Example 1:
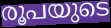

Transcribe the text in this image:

രൂപയുടെ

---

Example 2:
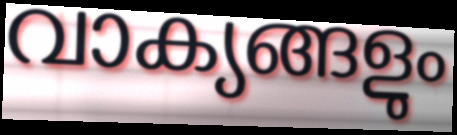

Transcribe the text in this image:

വാക്യങ്ങളും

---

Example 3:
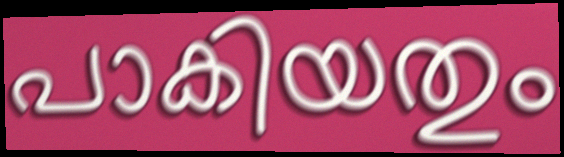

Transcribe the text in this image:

പാകിയതും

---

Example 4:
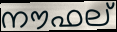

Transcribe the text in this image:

നൗഫല്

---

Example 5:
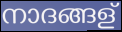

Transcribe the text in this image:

നാദങ്ങള്